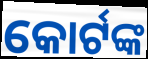
କୋର୍ଟଙ୍କ